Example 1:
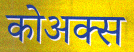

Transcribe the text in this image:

कोअक्स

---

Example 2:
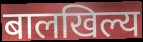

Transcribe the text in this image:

बालखिल्य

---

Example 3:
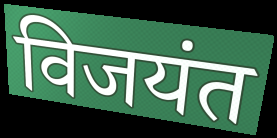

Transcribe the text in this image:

विजयंत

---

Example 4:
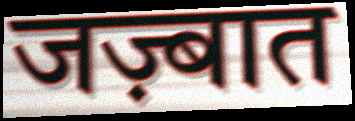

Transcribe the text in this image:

जज़्बात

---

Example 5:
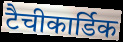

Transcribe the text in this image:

टैचीकार्डिक